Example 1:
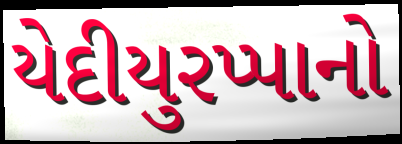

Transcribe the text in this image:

યેદીયુરપ્પાનો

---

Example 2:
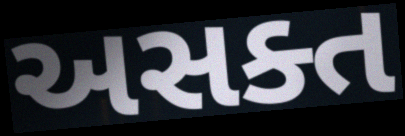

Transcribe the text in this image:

અસક્ત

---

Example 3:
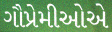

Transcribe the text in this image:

ગૌપ્રેમીઓએ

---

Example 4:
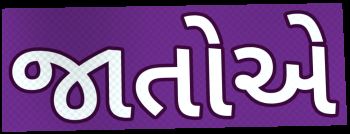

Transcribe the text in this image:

જાતોએ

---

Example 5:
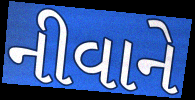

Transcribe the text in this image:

નીવાને